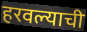
हरवल्याची